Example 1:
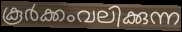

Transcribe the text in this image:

കൂർക്കംവലിക്കുന്ന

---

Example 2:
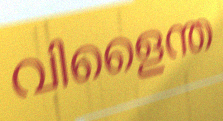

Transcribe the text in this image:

വിളൈന്ത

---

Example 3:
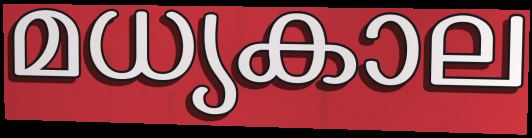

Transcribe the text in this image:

മധ്യകാല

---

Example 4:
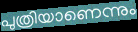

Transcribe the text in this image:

പുത്രിയാണെന്നും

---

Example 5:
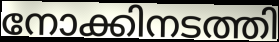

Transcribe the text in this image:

നോക്കിനടത്തി